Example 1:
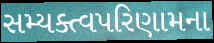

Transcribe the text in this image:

સમ્યક્ત્વપરિણામના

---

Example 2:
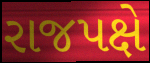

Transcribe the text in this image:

રાજપક્ષે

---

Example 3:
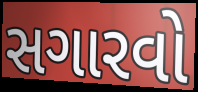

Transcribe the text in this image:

સગારવો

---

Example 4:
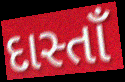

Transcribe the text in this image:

દાસ્તાઁ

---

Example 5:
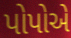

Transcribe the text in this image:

પોપોએ